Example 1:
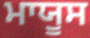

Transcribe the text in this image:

ਮਾਯੂਸ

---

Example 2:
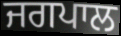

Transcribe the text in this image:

ਜਗਪਾਲ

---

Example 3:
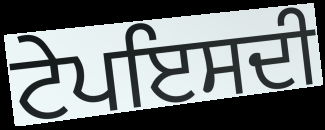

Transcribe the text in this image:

ਟੇਪਇਸਦੀ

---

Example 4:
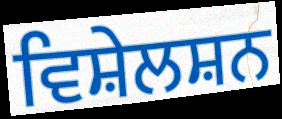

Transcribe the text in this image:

ਵਿਸ਼ੇਲਸ਼ਨ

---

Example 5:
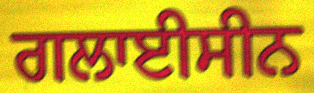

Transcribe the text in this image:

ਗਲਾਈਸੀਨ